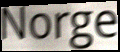
Norge